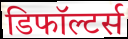
डिफॉल्टर्स